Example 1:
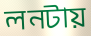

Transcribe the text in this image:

লনটায়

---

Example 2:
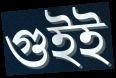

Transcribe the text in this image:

গুইই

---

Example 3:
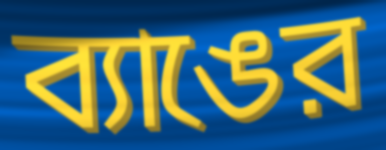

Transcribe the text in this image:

ব্যাঙের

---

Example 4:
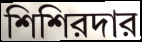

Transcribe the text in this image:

শিশিরদার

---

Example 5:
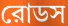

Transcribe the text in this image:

রোডস